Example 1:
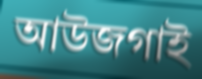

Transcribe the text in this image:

আউজগাই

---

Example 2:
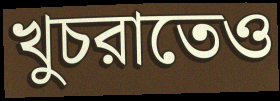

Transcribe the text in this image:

খুচরাতেও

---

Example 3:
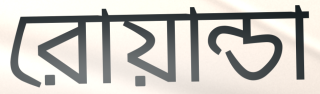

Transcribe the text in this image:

রোয়ান্ডা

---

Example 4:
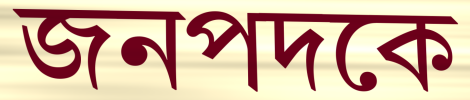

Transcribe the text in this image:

জনপদকে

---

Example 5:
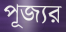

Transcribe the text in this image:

পূজ্যর